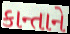
કાન્તાને